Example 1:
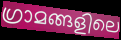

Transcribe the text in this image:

ഗ്രാമങ്ങളിലെ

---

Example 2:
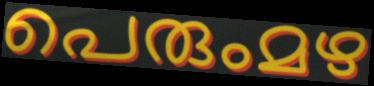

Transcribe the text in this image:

പെരുംമഴ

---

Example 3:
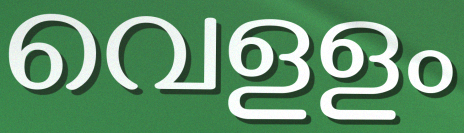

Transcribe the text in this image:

വെളളം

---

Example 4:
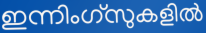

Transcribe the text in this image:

ഇന്നിംഗ്സുകളിൽ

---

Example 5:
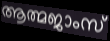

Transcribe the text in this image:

ആത്മജാംസ്